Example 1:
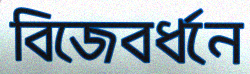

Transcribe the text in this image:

বিজেবর্ধনে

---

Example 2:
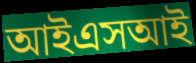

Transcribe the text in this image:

আইএসআই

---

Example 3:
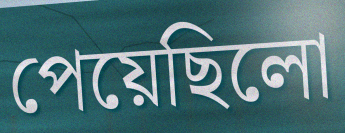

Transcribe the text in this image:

পেয়েছিলো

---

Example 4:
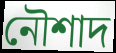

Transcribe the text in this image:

নৌশাদ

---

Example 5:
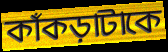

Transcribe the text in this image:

কাঁকড়াটাকে